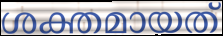
ശക്തമായത്